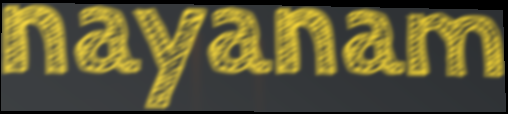
nayanam